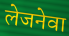
लेजनेवा